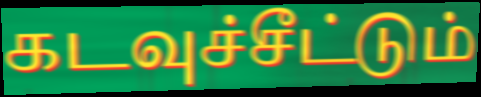
கடவுச்சீட்டும்